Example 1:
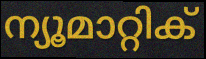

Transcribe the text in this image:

ന്യൂമാറ്റിക്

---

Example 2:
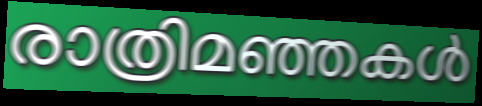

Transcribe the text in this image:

രാത്രിമഞ്ഞകൾ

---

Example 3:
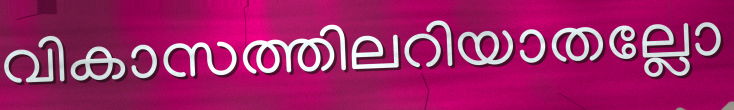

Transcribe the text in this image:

വികാസത്തിലറിയാതല്ലോ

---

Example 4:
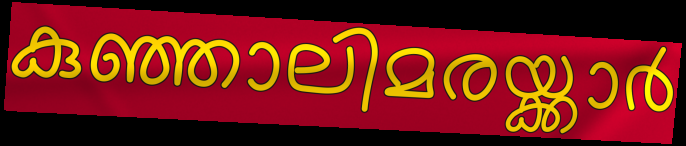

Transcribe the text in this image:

കുഞ്ഞാലിമരയ്ക്കാർ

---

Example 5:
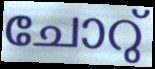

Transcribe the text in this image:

ചോറു്